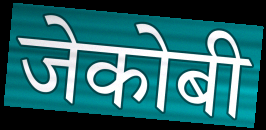
जेकोबी